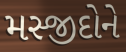
મસ્જીદોને